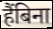
हैंबिना